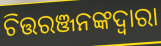
ଚିତ୍ତରଞ୍ଜନଙ୍କଦ୍ଵାରା